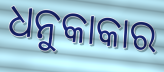
ଧନୁକାକାର